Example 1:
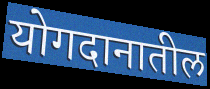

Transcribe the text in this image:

योगदानातील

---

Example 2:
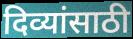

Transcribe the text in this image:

दिव्यांसाठी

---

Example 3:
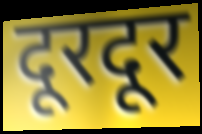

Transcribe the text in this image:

दूरदूर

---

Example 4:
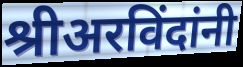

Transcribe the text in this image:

श्रीअरविंदांनी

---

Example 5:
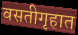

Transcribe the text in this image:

वसतीगृहात